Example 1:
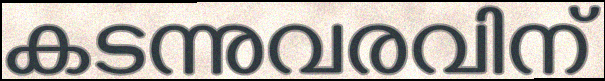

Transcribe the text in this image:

കടന്നുവരവിന്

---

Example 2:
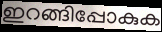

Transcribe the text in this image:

ഇറങ്ങിപ്പോകുക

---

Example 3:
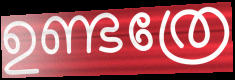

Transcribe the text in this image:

ഉണ്ടത്രേ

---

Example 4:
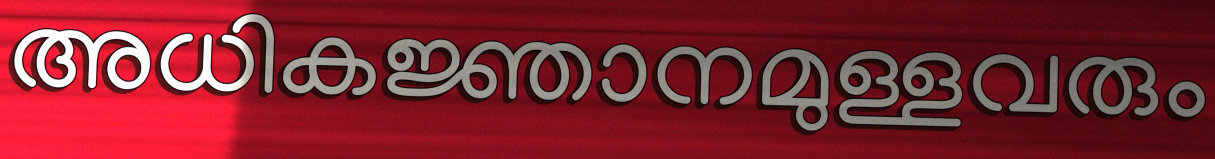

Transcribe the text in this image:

അധികജ്ഞാനമുള്ളവരും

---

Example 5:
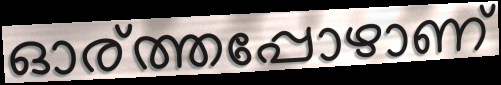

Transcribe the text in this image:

ഓര്ത്തപ്പോഴാണ്